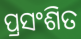
ପ୍ରସଂଶିତ